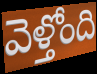
వెళ్తోంది